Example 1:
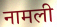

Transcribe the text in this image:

नामली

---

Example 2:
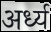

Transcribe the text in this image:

अर्ध्य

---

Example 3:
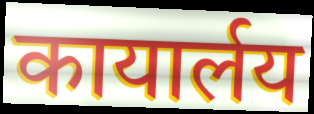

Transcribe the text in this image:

कायार्लय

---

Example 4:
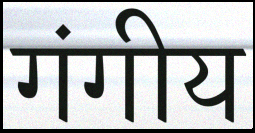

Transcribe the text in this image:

गंगीय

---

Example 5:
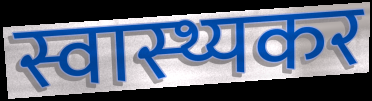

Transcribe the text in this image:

स्वास्थ्यकर